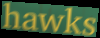
hawks